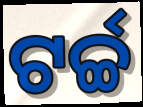
ଟର୍ଚ୍ଚ